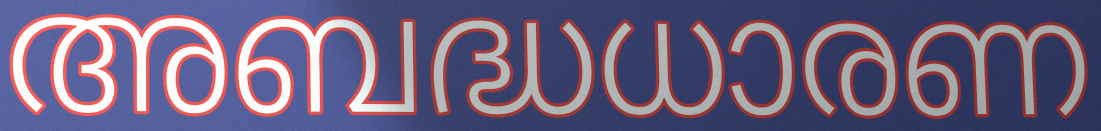
അബദ്ധധാരണ